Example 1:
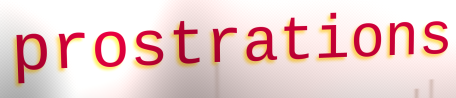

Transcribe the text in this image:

prostrations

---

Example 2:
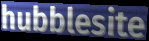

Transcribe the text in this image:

hubblesite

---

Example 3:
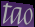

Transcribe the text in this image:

tao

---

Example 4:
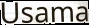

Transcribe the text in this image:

Usama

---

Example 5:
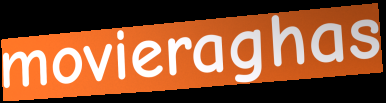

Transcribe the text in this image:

movieraghas